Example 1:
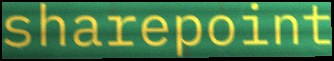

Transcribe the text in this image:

sharepoint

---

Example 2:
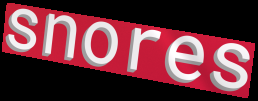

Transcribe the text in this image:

snores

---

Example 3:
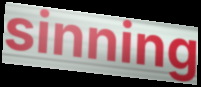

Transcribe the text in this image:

sinning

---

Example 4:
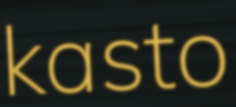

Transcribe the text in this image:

kasto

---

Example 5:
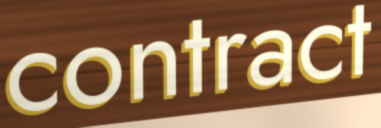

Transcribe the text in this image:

contract